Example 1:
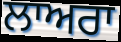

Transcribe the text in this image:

ਲਾਅਰਾ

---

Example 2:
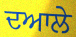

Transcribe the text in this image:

ਦਆਲੇ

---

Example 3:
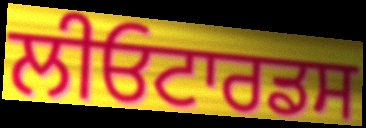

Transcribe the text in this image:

ਲੀਓਟਾਰਡਸ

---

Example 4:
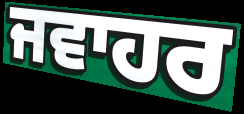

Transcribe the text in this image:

ਜਵਾਹਰ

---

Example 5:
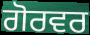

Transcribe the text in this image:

ਗੋਰਵਰ